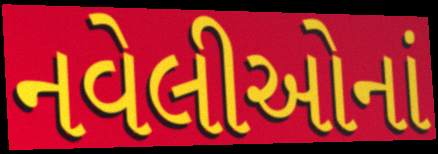
નવેલીઓનાં